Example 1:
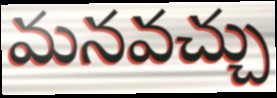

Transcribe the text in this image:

మనవచ్చు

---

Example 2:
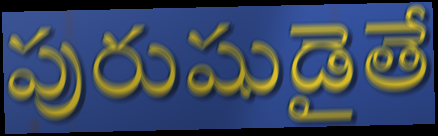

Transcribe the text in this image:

పురుషుడైతే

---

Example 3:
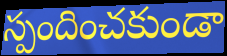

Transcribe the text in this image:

స్పందించకుండా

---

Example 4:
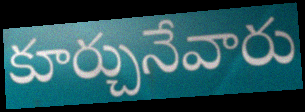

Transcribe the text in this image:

కూర్చునేవారు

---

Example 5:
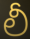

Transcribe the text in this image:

లీ